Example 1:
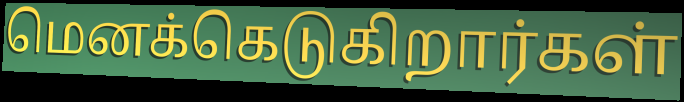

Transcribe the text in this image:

மெனக்கெடுகிறார்கள்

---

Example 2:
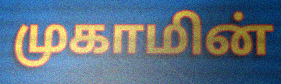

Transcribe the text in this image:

முகாமின்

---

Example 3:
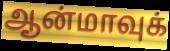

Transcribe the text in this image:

ஆன்மாவுக்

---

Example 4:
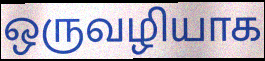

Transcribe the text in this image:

ஒருவழியாக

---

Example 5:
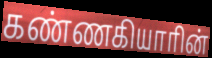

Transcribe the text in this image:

கண்ணகியாரின்